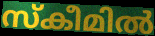
സ്കീമിൽ